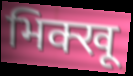
भिक्खू